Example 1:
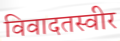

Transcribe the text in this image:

विवादतस्वीर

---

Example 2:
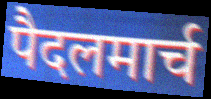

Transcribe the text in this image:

पैदलमार्च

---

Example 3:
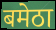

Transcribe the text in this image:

बमेठा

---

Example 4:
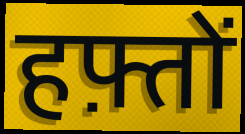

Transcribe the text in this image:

हफ़्तों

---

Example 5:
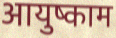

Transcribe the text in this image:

आयुष्काम